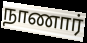
நாணார்